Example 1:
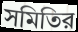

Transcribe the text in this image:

সমিতির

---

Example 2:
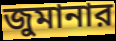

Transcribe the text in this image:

জুমানার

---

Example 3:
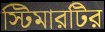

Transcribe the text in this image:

স্টিমারটির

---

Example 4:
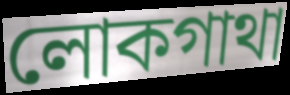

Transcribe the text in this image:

লোকগাথা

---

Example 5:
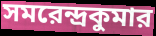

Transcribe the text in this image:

সমরেন্দ্রকুমার